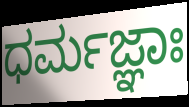
ಧರ್ಮಜ್ಞಾಃ